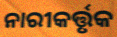
ନାରୀକର୍ତ୍ତୃକ